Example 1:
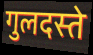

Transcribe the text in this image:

गुलदस्ते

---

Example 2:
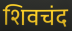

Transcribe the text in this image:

शिवचंद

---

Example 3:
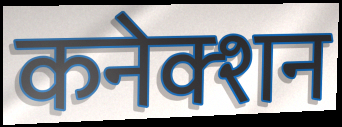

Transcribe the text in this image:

कनेक्‍शन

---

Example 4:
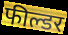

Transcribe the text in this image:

फील्डर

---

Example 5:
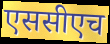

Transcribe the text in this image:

एससीएच